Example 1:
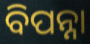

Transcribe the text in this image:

ବିପନ୍ନା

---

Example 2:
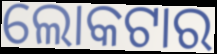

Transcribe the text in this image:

ଲୋକଟାର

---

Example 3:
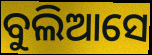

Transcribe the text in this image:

ବୁଲିଆସେ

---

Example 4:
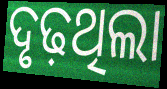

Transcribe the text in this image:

ଦୃଢ଼ଥିଲା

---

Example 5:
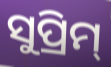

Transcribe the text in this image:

ସୁପ୍ରିମ୍